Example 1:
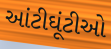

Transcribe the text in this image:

આંટીઘૂંટીઓ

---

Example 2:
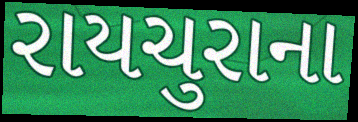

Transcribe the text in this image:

રાયચુરાના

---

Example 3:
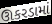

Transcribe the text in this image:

ઊકરડામાં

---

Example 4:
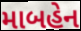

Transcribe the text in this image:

માબહેન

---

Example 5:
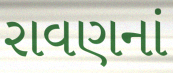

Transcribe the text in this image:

રાવણનાં